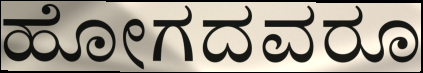
ಹೋಗದವರೂ